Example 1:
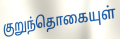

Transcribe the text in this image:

குறுந்தொகையுள்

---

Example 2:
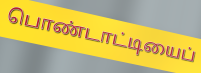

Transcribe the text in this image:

பொண்டாட்டியைப்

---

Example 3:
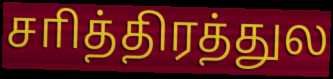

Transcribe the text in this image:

சரித்திரத்துல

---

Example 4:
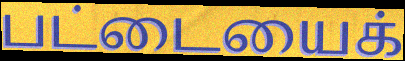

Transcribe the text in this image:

பட்டையைக்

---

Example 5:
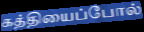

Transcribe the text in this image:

கத்தியைப்போல்